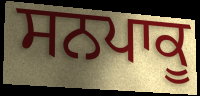
ਸਨਪਾਕੂ